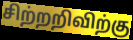
சிற்றறிவிற்கு